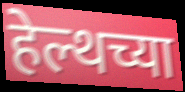
हेल्थच्या